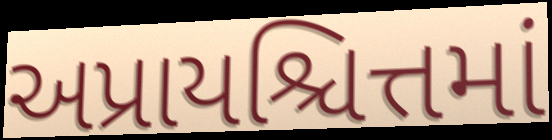
અપ્રાયશ્ચિત્તમાં